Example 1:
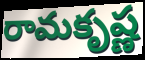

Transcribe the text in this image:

రామకృష్ణ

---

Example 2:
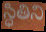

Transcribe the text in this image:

స్ధితిని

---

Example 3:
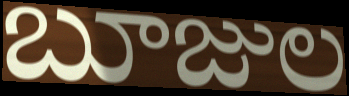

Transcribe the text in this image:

బూజుల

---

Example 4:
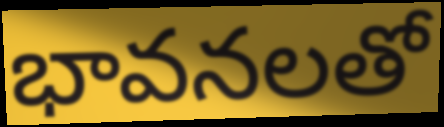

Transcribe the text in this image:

భావనలతో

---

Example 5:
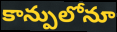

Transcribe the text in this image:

కాన్పులోనూ